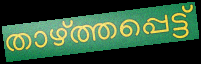
താഴ്ത്തപ്പെട്ട്